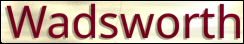
Wadsworth